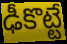
ఢీకొట్టే